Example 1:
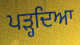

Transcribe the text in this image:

ਪੜ੍ਹਦਿਆ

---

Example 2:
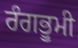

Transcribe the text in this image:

ਰੰਗਭੂਮੀ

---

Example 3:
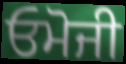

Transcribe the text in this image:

ਓਮੋਜੀ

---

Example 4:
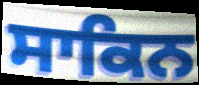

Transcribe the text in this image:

ਸਾਕਿਨ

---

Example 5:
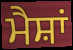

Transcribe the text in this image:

ਮੈਸ਼ਾਂ